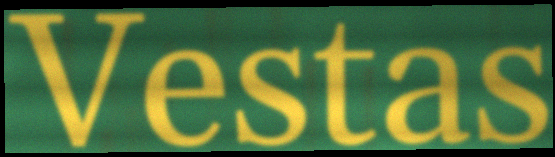
Vestas